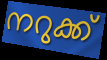
നറുക്ക്